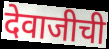
देवाजीची